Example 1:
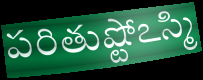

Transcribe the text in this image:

పరితుష్టోఽస్మి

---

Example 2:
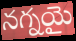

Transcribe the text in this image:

నగ్నయై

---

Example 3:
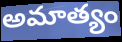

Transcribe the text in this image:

అమాత్యం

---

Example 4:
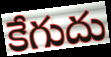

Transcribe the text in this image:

కేగుదు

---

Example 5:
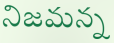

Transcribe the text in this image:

నిజమన్న